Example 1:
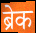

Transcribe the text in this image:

ब्रेक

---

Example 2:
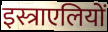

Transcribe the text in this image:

इस्त्राएलियों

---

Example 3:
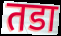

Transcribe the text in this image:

तडा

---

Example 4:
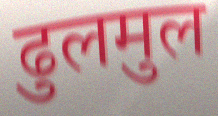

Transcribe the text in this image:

ढुलमुल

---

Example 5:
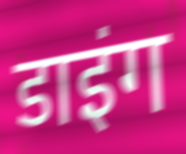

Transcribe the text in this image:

डाइंग